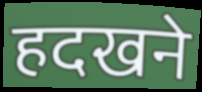
हदखने